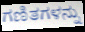
ಗಣಿತಗಳನ್ನು